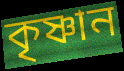
কৃষ্ণান